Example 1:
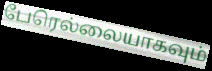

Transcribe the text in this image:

பேரெல்லையாகவும்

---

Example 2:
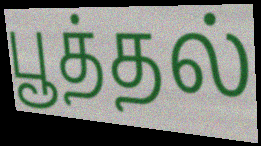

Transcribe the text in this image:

பூத்தல்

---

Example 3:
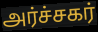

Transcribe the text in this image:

அர்ச்சகர்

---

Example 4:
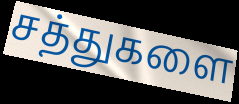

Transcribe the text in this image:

சத்துகளை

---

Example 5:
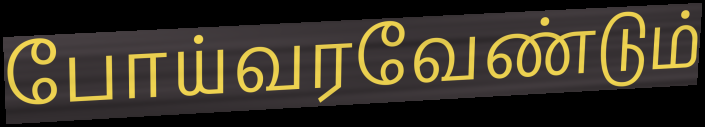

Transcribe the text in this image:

போய்வரவேண்டும்